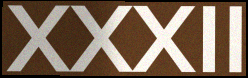
XXXII